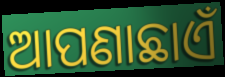
ଆପଣାଛାଏଁ